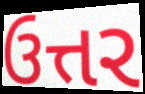
ઉત્તર